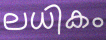
ലധികം